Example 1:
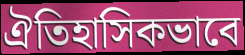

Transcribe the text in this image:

ঐতিহাসিকভাবে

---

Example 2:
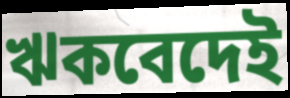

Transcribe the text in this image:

ঋকবেদেই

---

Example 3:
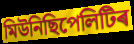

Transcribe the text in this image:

মিউনিছিপেলিটিৰ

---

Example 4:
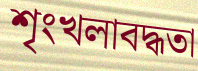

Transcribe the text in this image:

শৃংখলাবদ্ধতা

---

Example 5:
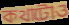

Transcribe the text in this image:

কথাটোও